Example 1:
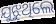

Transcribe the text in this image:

ଯୁଝୁଥିଲେ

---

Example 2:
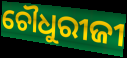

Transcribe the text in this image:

ଚୌଧୁରୀଜୀ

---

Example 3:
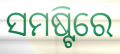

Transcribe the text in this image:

ସମଷ୍ଟିରେ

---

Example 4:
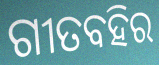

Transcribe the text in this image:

ଗୀତବହିର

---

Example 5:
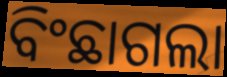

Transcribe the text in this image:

ବିଂଛାଗଲା